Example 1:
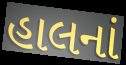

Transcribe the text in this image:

હાલનાં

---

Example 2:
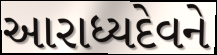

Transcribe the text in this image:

આરાધ્યદેવને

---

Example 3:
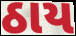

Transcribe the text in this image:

ઠાય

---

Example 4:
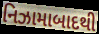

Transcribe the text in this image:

નિઝામાબાદથી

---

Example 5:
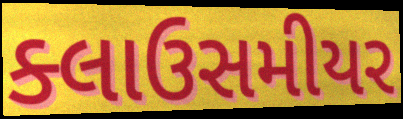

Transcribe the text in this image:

ક્લાઉસમીયર